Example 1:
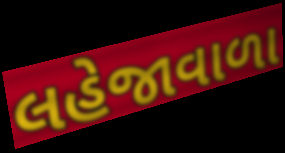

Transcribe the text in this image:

લહેજાવાળા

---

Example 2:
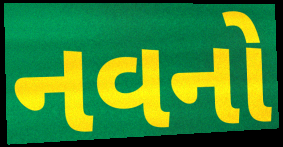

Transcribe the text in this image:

નવનો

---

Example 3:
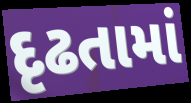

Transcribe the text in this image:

દૃઢતામાં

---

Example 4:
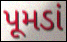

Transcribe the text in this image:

પૂમડાં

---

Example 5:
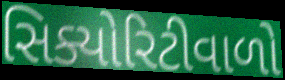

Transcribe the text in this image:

સિક્યોરિટીવાળો